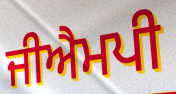
ਜੀਐਮਪੀ